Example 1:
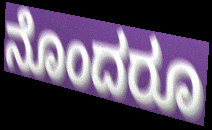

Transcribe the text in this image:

ನೊಂದರೂ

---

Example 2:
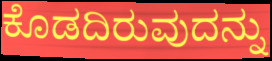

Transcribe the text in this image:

ಕೊಡದಿರುವುದನ್ನು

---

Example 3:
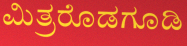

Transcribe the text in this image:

ಮಿತ್ರರೊಡಗೂಡಿ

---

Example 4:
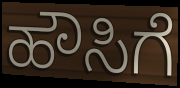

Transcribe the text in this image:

ಹೌಸಿಗೆ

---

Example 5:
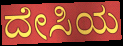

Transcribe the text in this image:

ದೇಸಿಯ